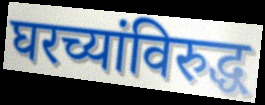
घरच्यांविरुद्ध